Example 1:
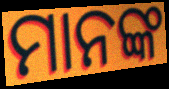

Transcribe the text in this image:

ମାନଙ୍କ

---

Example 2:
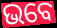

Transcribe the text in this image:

ଭବେ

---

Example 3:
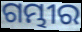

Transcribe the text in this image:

ଗମ୍ଭୀର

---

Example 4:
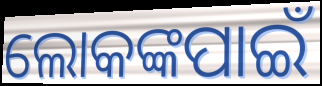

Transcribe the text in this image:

ଲୋକଙ୍କପାଇଁ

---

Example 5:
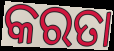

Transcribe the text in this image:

କରତା